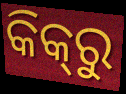
କିକ୍‍ରୁ